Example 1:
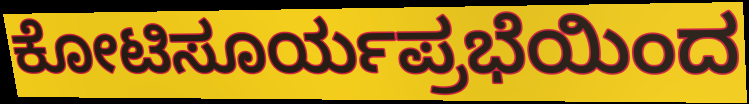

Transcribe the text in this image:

ಕೋಟಿಸೂರ್ಯಪ್ರಭೆಯಿಂದ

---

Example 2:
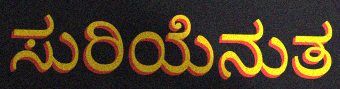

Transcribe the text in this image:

ಸುರಿಯೆನುತ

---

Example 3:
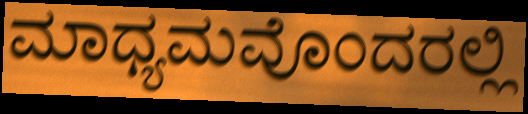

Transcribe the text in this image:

ಮಾಧ್ಯಮವೊಂದರಲ್ಲಿ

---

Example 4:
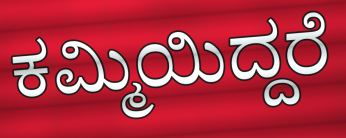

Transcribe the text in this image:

ಕಮ್ಮಿಯಿದ್ದರೆ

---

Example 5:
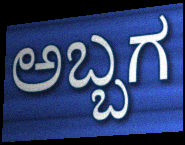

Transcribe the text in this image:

ಅಬ್ಬಗ